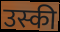
उस्‍की